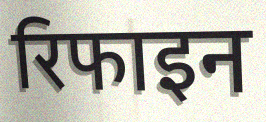
रिफाइन